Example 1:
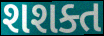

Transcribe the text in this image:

શશક્ત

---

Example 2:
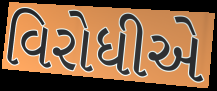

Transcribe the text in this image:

વિરોધીએ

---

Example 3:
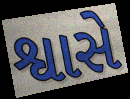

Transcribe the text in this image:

શ્વાસે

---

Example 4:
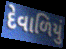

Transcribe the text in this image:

દેવાળિયું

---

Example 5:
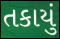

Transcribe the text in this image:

તકાયું